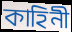
কাহিনী